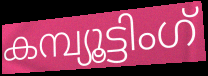
കമ്പ്യൂട്ടിംഗ്